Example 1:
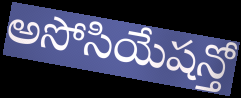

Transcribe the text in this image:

అసోసియేషన్తో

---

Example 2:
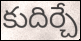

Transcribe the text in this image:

కుదిర్చే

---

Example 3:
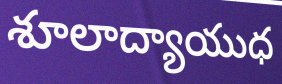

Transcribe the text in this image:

శూలాద్యాయుధ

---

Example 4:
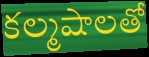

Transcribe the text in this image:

కల్మషాలతో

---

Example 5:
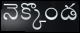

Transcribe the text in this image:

నెక్కొండ